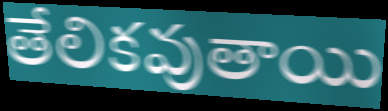
తేలికవుతాయి